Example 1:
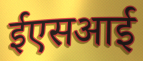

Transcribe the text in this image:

ईएसआई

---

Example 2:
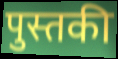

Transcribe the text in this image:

पुस्तकी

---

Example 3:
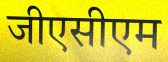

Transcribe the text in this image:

जीएसीएम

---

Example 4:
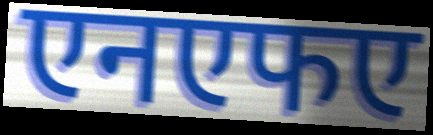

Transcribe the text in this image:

एनएफए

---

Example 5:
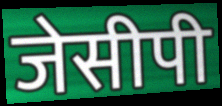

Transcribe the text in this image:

जेसीपी